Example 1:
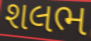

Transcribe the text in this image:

શલભ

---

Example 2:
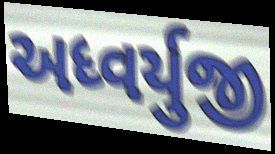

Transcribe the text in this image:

અધ્વર્યુજી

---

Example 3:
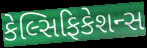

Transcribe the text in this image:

કેલ્સિફિકેશન્સ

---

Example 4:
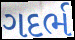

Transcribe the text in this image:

ગદર્ભ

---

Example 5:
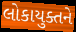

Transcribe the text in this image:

લોકાયુક્તને